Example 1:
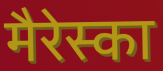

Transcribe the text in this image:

मैरेस्का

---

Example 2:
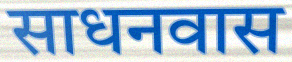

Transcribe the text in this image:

साधनवास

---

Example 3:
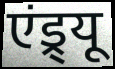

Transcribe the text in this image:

एंड्र्यू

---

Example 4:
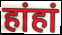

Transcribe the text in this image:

हांहां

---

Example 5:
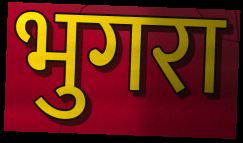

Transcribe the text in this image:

भुगरा